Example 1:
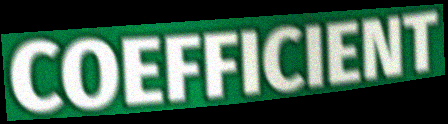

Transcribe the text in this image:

COEFFICIENT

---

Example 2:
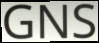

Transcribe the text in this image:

GNS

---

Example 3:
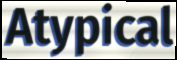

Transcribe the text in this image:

Atypical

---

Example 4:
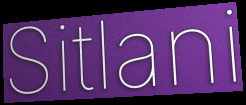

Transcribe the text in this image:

Sitlani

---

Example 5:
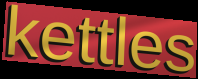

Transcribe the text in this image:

kettles